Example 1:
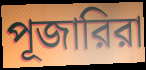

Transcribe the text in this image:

পূজারিরা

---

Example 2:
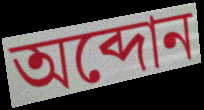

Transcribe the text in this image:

অব্দোন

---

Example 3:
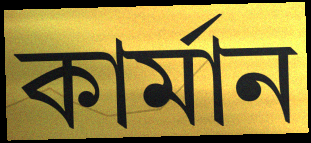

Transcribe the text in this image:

কার্মান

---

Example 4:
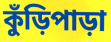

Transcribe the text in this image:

কুঁড়িপাড়া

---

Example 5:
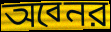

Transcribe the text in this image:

অব্নের